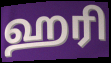
ஹரி